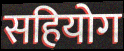
सहियोग